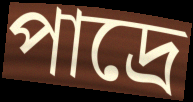
পাদ্রে